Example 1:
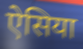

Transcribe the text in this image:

ऐसिया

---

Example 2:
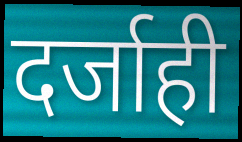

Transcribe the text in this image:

दर्जाही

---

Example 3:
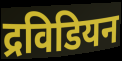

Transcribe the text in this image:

द्रविडियन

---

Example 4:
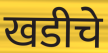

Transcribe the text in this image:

खडीचे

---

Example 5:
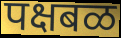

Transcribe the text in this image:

पक्षबळ